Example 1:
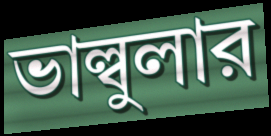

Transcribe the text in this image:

ভাল্বুলার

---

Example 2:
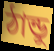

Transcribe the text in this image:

ঠান্ডু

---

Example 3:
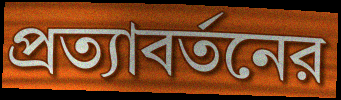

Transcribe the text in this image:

প্রত্যাবর্তনের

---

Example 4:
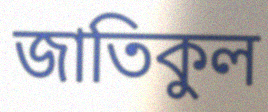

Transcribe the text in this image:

জাতিকুল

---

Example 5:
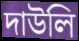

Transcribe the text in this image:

দাউলি